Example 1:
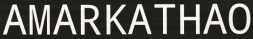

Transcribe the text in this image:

AMARKATHAO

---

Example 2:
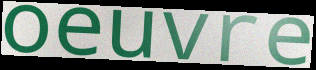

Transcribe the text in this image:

oeuvre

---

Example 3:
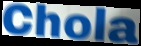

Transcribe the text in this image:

Chola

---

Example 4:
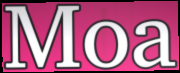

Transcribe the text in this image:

Moa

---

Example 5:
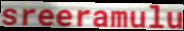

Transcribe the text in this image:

sreeramulu